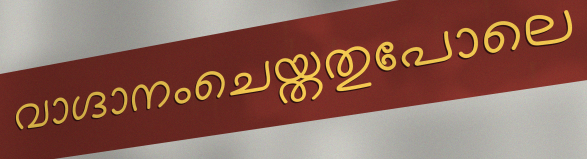
വാഗ്ദാനംചെയ്തതുപോലെ